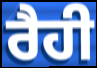
ਰੈਹੀ